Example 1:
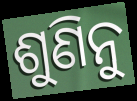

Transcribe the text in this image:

ଶୁଣିନୁ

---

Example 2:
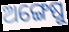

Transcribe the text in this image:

ଅଙ୍ଗେଷୁ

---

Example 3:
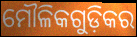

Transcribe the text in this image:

ମୌଳିକଗୁଡ଼ିକର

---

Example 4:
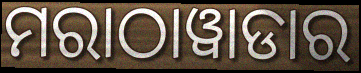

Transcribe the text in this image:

ମରାଠାୱାଡାର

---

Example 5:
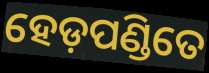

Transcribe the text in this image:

ହେଡ଼ପଣ୍ଡିତେ